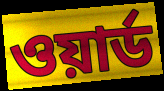
ওয়ার্ড